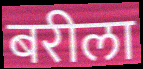
बरीला